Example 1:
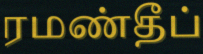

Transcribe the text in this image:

ரமண்தீப்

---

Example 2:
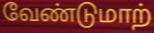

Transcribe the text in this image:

வேண்டுமாற்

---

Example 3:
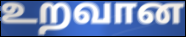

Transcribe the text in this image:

உறவான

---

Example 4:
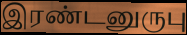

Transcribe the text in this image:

இரண்டனுருபு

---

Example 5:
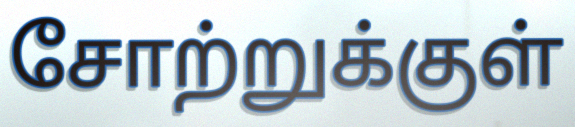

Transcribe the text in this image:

சோற்றுக்குள்